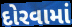
દોરવામાં